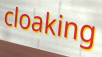
cloaking